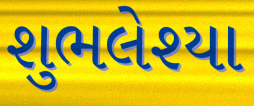
શુભલેશ્યા